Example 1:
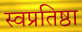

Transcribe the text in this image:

स्वप्रतिष्ठा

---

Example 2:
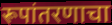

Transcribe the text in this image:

रूपांतरणाचा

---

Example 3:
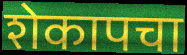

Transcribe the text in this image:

शेकापचा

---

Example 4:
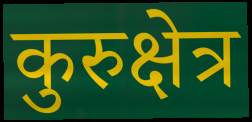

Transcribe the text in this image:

कुरुक्षेत्र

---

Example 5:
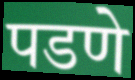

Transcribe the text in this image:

पडणे